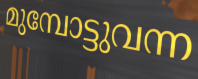
മുമ്പോട്ടുവന്ന